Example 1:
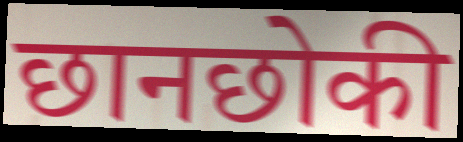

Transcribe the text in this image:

छानछोकी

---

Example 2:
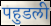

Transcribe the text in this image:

पहुडली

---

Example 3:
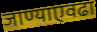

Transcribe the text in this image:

जाण्याएवढा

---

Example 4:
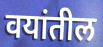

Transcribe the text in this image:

वयांतील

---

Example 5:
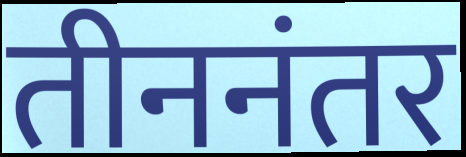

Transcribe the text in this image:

तीननंतर